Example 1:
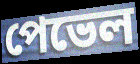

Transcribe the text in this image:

পেভেল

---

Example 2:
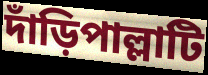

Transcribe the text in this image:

দাঁড়িপাল্লাটি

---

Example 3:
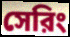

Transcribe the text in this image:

সেরিং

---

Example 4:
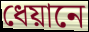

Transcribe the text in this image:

ধেয়ানে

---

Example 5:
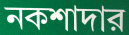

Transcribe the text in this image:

নকশাদার